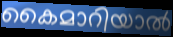
കൈമാറിയാൽ